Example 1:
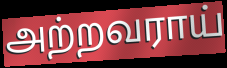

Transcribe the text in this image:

அற்றவராய்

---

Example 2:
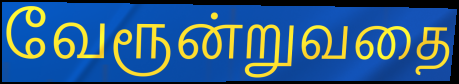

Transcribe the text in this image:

வேரூன்றுவதை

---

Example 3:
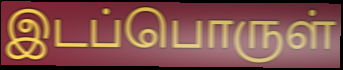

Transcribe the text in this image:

இடப்பொருள்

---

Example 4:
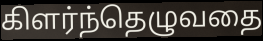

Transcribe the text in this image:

கிளர்ந்தெழுவதை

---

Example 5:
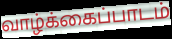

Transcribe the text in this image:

வாழ்க்கைப்பாடம்